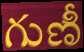
గుణీ